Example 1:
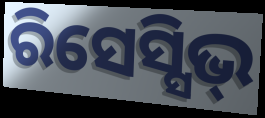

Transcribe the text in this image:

ରିସେସ୍ସିଭ୍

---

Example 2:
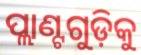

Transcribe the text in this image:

ପ୍ଲାଣ୍ଟଗୁଡ଼ିକୁ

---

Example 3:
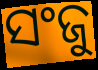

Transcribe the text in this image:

ସଂଜୁ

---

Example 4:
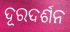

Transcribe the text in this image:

ଦୂରଦର୍ଶନ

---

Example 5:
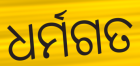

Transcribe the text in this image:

ଧର୍ମଗତ